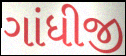
ગાંધીજી